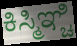
ಕಿಸ್ಮಿಞ್ಚಿ